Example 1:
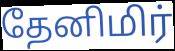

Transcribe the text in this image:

தேனிமிர்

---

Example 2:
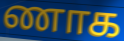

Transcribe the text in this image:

ணாக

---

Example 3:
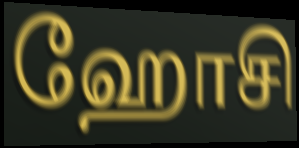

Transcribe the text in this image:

ஹோசி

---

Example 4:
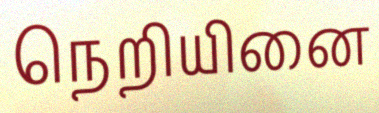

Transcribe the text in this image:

நெறியினை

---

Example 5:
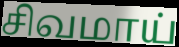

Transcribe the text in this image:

சிவமாய்